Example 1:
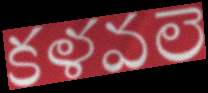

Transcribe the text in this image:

కళవలె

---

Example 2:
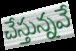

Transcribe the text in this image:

చేస్తున్నవే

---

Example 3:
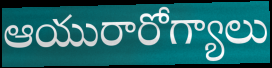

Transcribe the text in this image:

ఆయురారోగ్యాలు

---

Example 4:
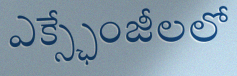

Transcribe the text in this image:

ఎక్స్ఛేంజీలలో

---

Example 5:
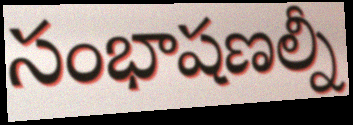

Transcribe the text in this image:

సంభాషణల్నీ